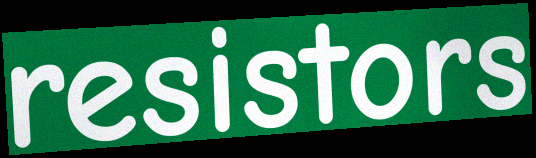
resistors